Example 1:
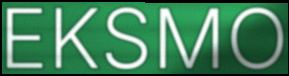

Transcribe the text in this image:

EKSMO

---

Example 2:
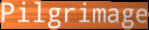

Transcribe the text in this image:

Pilgrimage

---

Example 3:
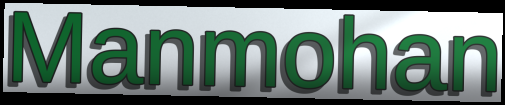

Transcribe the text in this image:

Manmohan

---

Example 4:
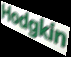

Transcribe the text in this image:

Hodgkin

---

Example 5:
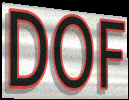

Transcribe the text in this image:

DOF